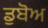
ਡੁਬੋਅ